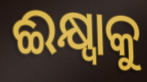
ଈକ୍ଷ୍ୱାକୁ